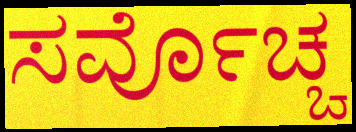
ಸರ್ವೊಚ್ಚ